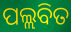
ପଲ୍ଲବିତ